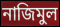
নাজিমুল